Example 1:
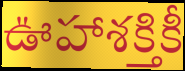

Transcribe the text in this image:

ఊహాశక్తికీ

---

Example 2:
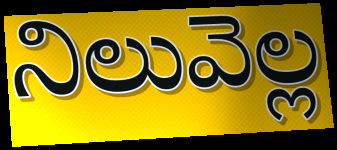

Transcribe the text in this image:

నిలువెల్ల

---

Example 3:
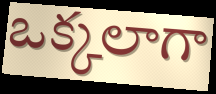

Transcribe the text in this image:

ఒక్కలాగా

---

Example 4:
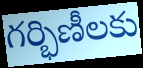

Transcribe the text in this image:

గర్భిణీలకు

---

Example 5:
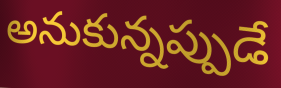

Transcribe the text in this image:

అనుకున్నప్పుడే